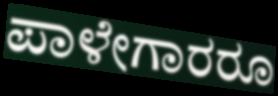
ಪಾಳೇಗಾರರೂ